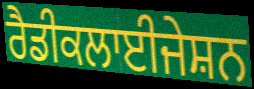
ਰੈਡੀਕਲਾਈਜੇਸ਼ਨ